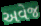
અવેજ